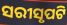
ସରୀସୃପଟି